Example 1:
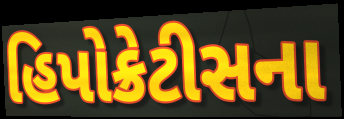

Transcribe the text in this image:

હિપોક્રેટીસના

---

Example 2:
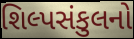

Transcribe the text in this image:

શિલ્પસંકુલનો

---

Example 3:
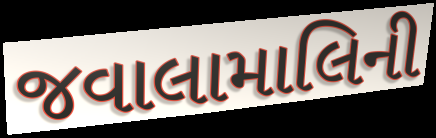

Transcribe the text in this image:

જવાલામાલિની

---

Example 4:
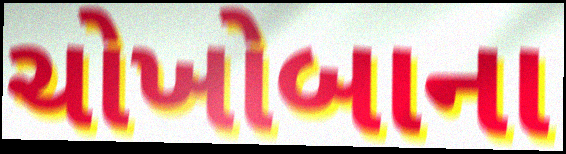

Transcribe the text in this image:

ચોખોબાના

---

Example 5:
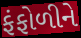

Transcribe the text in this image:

ફંફોળીને